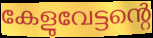
കേളുവേട്ടന്റെ